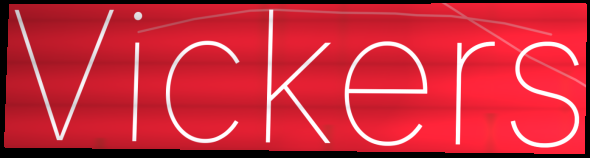
Vickers